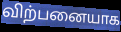
விற்பனையாக